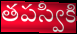
తపస్వికి